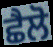
ਛੈਲੋ